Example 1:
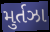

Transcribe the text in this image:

મુર્તઝા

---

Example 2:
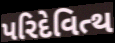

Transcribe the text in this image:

પરિદેવિત્થ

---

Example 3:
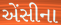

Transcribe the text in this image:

એંસીના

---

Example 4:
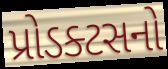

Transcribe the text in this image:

પ્રોડક્ટસનો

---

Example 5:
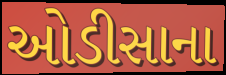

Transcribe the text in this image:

ઓડીસાના